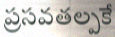
ప్రసవతల్పకే